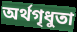
অর্থগৃধুতা